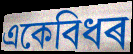
একেবিধৰ